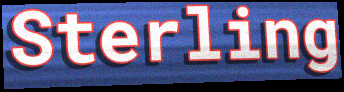
Sterling